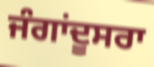
ਜੰਗਾਂਦੂਸਰਾ